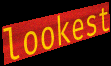
lookest